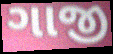
ગાજી